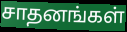
சாதனங்கள்